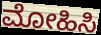
ಮೋಹಿಸಿ